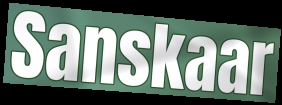
Sanskaar